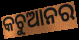
କଚୁଆନର